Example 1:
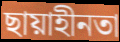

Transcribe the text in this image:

ছায়াহীনতা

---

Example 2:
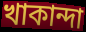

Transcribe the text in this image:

খাকান্দা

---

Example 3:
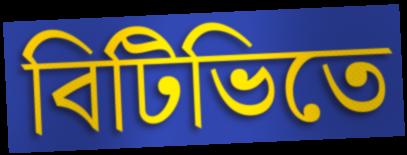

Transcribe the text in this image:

বিটিভিতে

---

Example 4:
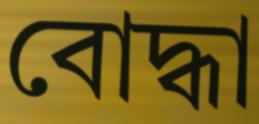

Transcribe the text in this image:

বোদ্ধা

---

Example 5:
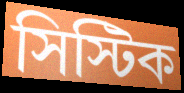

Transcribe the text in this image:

সিস্টিক